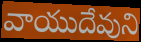
వాయుదేవుని